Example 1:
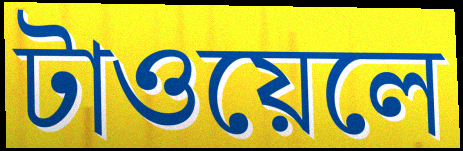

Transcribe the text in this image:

টাওয়েলে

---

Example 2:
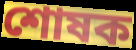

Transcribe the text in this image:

শোষক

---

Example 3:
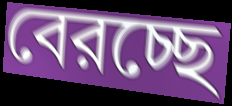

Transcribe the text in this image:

বেরচ্ছে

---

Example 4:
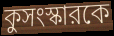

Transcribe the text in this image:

কুসংস্কারকে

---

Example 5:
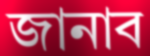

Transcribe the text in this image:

জানাব